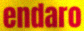
endaro